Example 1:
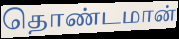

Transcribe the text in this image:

தொண்டமான்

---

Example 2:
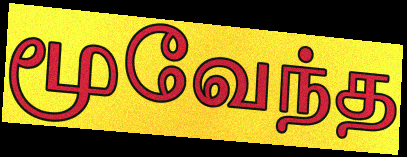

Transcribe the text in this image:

மூவேந்த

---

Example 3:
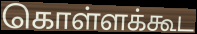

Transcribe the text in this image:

கொள்ளக்கூட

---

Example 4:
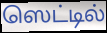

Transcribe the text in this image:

ஸெட்டில்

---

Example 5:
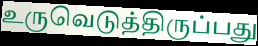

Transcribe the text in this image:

உருவெடுத்திருப்பது